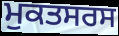
ਮੁਕਤਸਰਸ